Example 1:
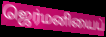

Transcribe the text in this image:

ஜெர்மனியைப்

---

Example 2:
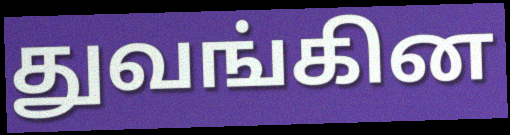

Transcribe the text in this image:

துவங்கின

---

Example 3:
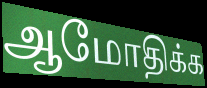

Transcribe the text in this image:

ஆமோதிக்க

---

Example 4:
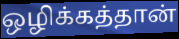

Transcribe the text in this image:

ஒழிக்கத்தான்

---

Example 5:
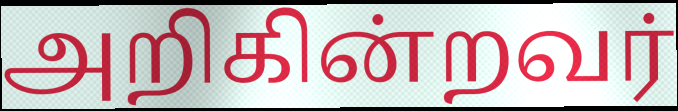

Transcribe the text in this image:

அறிகின்றவர்